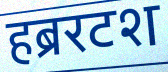
हब्ररटश